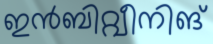
ഇൻബിറ്റ്വീനിങ്